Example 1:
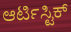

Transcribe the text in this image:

ಆರ್ಟಿಸ್ಟಿಕ್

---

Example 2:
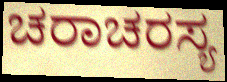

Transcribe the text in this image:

ಚರಾಚರಸ್ಯ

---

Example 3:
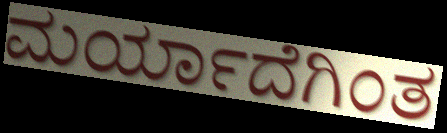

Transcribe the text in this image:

ಮರ್ಯಾದೆಗಿಂತ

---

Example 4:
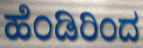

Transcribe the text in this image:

ಹೆಂಡಿರಿಂದ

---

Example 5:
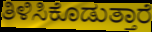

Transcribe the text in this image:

ತಿಳಿಸಿಕೊಡುತ್ತಾರೆ